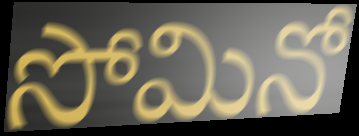
సోమినో